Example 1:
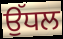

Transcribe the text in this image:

ਉੱਧਲ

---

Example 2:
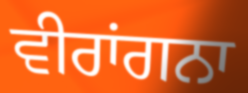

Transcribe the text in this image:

ਵੀਰਾਂਗਨਾ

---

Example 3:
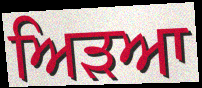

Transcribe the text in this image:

ਅਿੜਆ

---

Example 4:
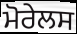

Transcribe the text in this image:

ਮੋਰੇਲਸ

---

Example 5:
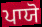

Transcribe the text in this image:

ਪਾਯੋ